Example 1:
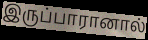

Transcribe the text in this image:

இருப்பாரானால்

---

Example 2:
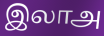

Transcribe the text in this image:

இலாஅ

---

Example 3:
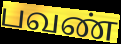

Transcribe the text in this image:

பவண்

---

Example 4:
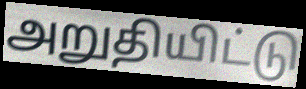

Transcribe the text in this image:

அறுதியிட்டு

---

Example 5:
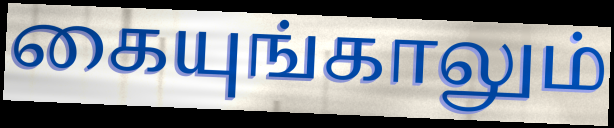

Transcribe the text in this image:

கையுங்காலும்